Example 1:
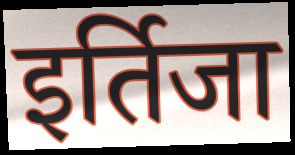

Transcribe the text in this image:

इर्तिजा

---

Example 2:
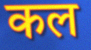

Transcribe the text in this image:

कल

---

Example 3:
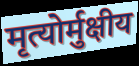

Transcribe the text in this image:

मृत्‍योर्मुक्षीय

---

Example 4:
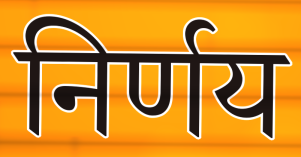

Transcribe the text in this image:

निर्णय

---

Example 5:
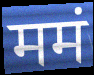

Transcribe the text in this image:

ममं